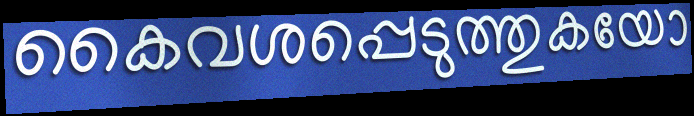
കൈവശപ്പെടുത്തുകയോ